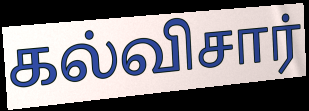
கல்விசார்